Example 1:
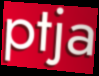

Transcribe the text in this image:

ptja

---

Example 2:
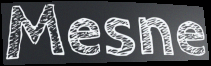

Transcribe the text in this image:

Mesne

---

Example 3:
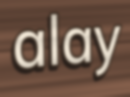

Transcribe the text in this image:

alay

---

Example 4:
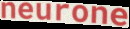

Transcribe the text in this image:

neurone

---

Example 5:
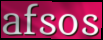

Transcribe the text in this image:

afsos